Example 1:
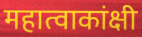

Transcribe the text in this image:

महात्वाकांक्षी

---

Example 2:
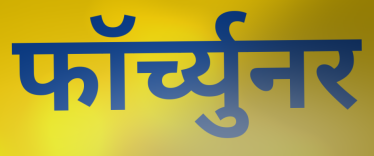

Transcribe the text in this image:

फॉर्च्युनर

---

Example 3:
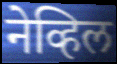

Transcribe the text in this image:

नेव्हिल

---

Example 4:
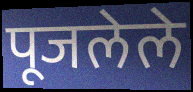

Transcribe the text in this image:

पूजलेले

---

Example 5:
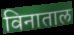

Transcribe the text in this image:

विनाताल